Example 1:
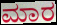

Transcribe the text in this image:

ಮಾರ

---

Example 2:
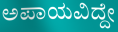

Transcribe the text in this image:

ಅಪಾಯವಿದ್ದೇ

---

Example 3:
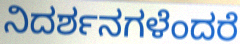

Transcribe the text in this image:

ನಿದರ್ಶನಗಳೆಂದರೆ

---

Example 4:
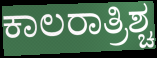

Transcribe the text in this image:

ಕಾಲರಾತ್ರಿಶ್ಚ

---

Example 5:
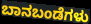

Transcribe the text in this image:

ಬಾನಬಂಡೆಗಳು